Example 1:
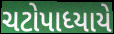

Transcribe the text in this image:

ચટોપાધ્યાયે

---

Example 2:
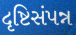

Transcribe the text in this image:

દૃષ્ટિસંપન્ન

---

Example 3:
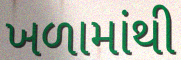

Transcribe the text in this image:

ખળામાંથી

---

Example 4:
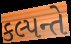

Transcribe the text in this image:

કલ્પન્તે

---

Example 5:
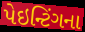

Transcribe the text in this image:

પેઇન્ટિંગના